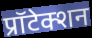
प्रॉटेक्शन